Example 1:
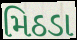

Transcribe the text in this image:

મિઠડા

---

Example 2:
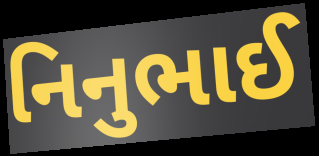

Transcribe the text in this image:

નિનુભાઈ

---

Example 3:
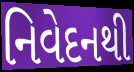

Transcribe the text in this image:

નિવેદનથી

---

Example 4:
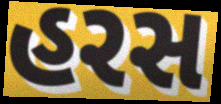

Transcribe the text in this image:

હરસ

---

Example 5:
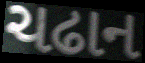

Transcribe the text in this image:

ચઢાન